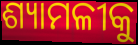
ଶ୍ୟାମଳୀକୁ